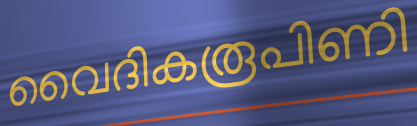
വൈദികരൂപിണി